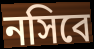
নসিবে